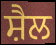
ਸ਼ੈਲ